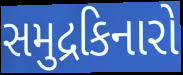
સમુદ્રકિનારો